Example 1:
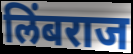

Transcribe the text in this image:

लिंबराज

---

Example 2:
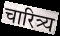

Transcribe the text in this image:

चारित्र्य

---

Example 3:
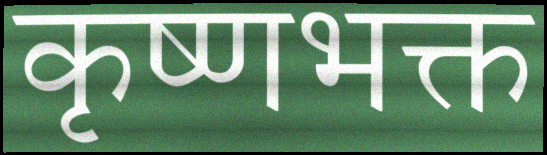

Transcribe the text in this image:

कृष्णभक्त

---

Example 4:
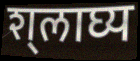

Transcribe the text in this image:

श्लाघ्य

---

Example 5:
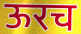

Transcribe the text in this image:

ऊरच